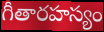
గీతారహస్యం